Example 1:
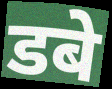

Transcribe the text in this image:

डबे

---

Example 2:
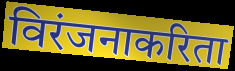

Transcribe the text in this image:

विरंजनाकरिता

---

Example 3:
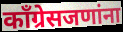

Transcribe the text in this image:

काँग्रेसजणांना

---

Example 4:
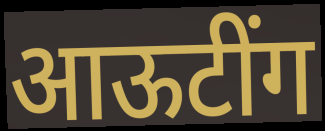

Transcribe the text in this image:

आऊटींग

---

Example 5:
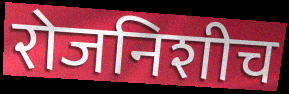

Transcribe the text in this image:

रोजनिशीच